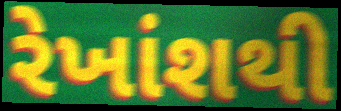
રેખાંશથી